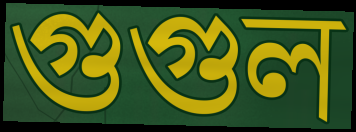
গুগুল